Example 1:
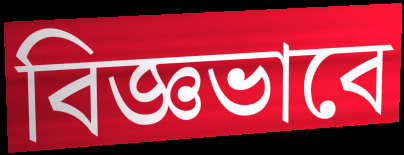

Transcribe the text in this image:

বিজ্ঞভাবে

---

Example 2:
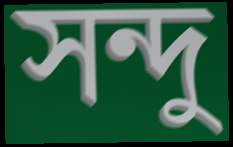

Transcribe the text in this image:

সন্দু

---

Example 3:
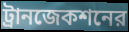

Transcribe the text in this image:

ট্রানজেকশনের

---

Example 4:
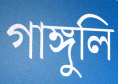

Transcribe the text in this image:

গাঙ্গুলি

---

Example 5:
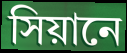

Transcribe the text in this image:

সিয়ানে